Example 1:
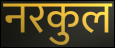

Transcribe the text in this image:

नरकुल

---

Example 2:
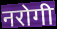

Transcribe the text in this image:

नरोगी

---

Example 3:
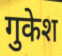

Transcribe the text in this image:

गुकेश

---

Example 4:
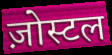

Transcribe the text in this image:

ज़ोस्टल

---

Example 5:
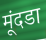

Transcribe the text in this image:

मूंदडा